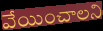
వేయించాలని